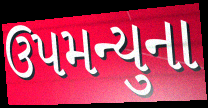
ઉપમન્યુના